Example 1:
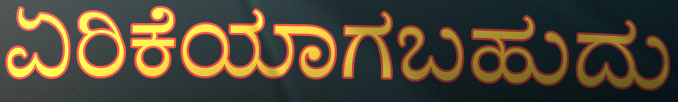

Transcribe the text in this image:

ಏರಿಕೆಯಾಗಬಹುದು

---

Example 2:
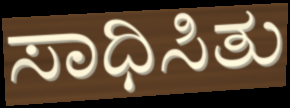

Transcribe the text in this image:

ಸಾಧಿಸಿತು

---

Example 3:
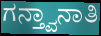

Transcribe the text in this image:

ಗನ್ತ್ವಾನಾತಿ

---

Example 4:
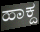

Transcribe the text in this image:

ಹಾಕ್ದ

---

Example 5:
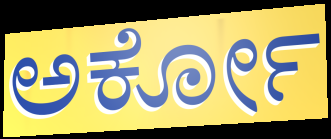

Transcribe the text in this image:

ಅರ್ಕೋ